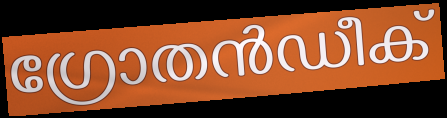
ഗ്രോതൻഡീക്